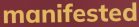
manifested